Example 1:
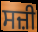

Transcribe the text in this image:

ਸਜ਼ੀ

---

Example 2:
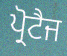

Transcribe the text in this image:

ਪ੍ਰੋਟੈਜ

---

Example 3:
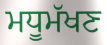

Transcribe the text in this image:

ਮਧੂਮੱਖਣ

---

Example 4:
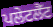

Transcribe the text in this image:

ਪਲੇਟਲੈੱਟ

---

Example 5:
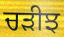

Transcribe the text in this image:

ਚੜੀਝ